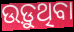
ଉଡ଼ୁଥିବା